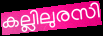
കല്ലിലുരസി